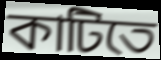
কাটিতে